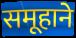
समूहाने